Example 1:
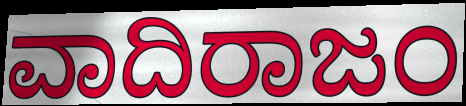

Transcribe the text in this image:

ವಾದಿರಾಜಂ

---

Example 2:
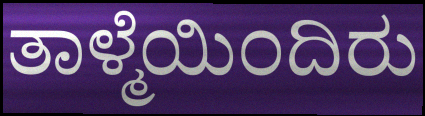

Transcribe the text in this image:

ತಾಳ್ಮೆಯಿಂದಿರು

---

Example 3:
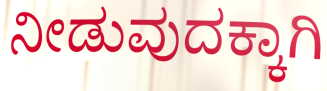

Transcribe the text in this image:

ನೀಡುವುದಕ್ಕಾಗಿ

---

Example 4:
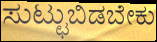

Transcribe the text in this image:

ಸುಟ್ಟುಬಿಡಬೇಕು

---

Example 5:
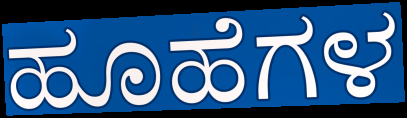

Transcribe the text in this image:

ಹೂಹೆಗಳ